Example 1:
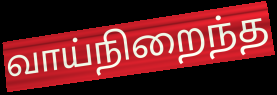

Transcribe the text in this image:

வாய்நிறைந்த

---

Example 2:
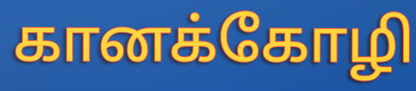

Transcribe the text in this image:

கானக்கோழி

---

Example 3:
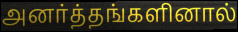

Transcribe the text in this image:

அனர்த்தங்களினால்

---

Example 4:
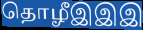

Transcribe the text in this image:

தொழீஇஇஇ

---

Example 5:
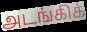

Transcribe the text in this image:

அடங்கிக்